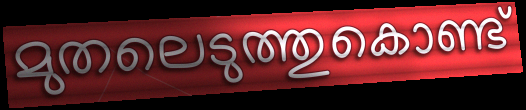
മുതലെടുത്തുകൊണ്ട്